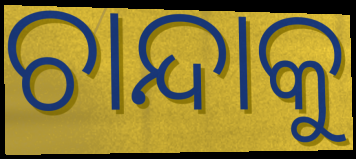
ଚାନ୍ଦାକୁ